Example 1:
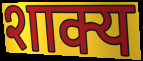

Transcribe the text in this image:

शाक्य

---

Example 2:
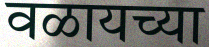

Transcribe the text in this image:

वळायच्या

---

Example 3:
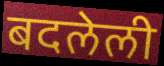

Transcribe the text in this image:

बदलेली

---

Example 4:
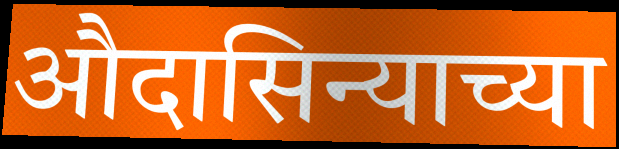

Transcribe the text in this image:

औदासिन्याच्या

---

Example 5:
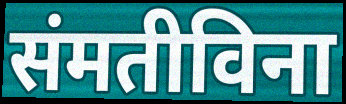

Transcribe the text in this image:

संमतीविना